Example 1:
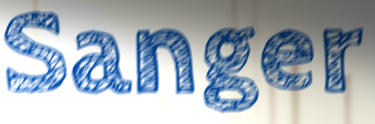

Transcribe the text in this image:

Sanger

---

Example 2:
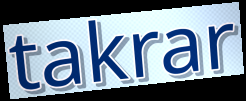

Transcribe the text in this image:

takrar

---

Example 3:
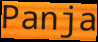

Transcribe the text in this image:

Panja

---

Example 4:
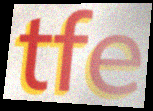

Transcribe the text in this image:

tfe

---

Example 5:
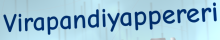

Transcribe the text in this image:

Virapandiyappereri